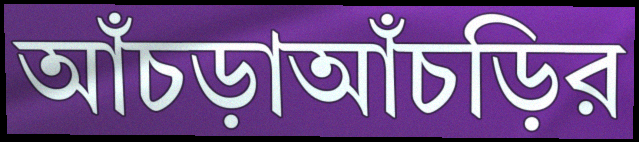
আঁচড়াআঁচড়ির